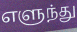
எளுந்து